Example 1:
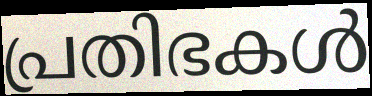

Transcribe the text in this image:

പ്രതിഭകൾ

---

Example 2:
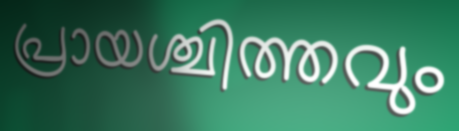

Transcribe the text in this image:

പ്രായശ്ചിത്തവും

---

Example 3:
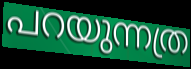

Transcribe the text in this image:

പറയുന്നത്ര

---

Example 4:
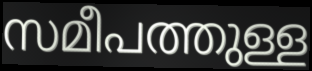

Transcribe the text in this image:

സമീപത്തുള്ള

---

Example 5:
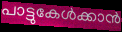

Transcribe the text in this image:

പാട്ടുകേൾക്കാൻ